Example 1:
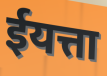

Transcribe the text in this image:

ईयत्ता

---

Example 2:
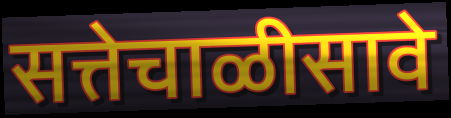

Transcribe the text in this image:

सत्तेचाळीसावे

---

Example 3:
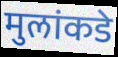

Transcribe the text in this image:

मुलांकडे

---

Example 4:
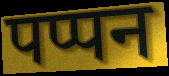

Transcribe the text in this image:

पप्पन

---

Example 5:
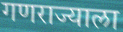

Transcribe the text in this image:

गणराज्याला